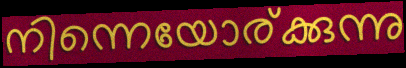
നിന്നെയോര്ക്കുന്നു